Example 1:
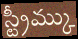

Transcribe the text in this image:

స్ట్రీమ్కు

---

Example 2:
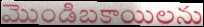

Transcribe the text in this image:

మొండిబకాయిలను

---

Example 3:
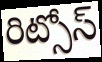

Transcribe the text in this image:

రిట్సోస్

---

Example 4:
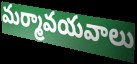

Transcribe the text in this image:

మర్మావయవాలు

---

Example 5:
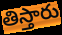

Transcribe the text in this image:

తిస్తారు